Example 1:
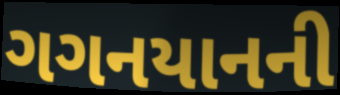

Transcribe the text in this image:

ગગનયાનની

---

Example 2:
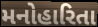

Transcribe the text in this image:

મનોહારિતા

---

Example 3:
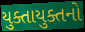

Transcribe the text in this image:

યુક્તાયુક્તનો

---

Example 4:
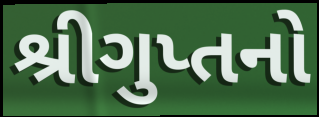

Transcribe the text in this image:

શ્રીગુપ્તનો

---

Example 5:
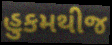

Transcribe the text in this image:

હુકમથીજ